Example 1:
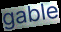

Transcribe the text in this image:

gable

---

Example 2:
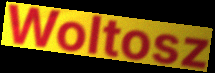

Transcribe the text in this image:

Woltosz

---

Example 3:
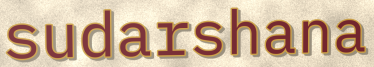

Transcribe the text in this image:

sudarshana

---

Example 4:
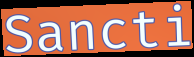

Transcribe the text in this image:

Sancti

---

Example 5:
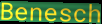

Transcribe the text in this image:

Benesch